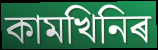
কামখিনিৰ